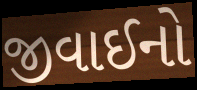
જીવાઈનો